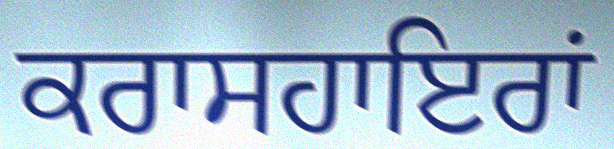
ਕਰਾਸਹਾਇਰਾਂ